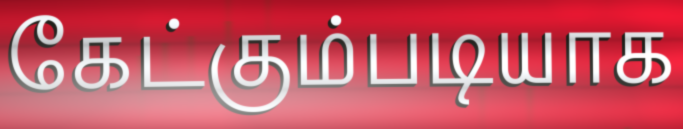
கேட்கும்படியாக